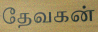
தேவகன்